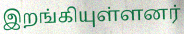
இறங்கியுள்ளனர்